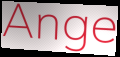
Ange